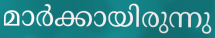
മാർക്കായിരുന്നു